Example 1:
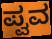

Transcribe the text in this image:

ಪ್ವವ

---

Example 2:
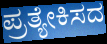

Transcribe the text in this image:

ಪ್ರತ್ಯೇಕಿಸದ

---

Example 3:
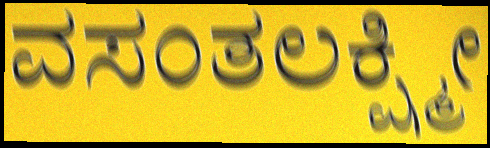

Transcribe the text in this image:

ವಸಂತಲಕ್ಷ್ಮೀ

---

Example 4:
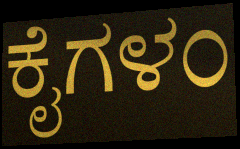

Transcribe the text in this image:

ಕೈಗಳಂ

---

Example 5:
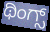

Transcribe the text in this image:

ಥಿಂಗ್ಸ್